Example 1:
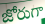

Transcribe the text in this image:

జోరుగా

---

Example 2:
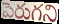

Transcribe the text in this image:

పెరుగని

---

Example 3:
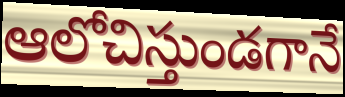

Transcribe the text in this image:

ఆలోచిస్తుండగానే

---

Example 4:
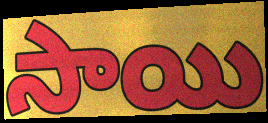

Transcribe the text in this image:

సాయి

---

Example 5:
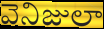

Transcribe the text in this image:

వెనిజులా